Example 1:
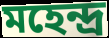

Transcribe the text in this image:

মহেন্দ্ৰ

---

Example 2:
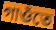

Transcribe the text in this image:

গাওঁতে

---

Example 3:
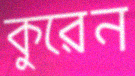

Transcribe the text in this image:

কুৱেন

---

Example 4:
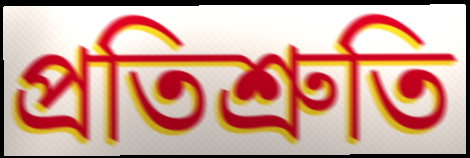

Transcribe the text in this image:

প্ৰতিশ্ৰুতি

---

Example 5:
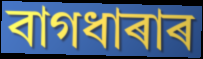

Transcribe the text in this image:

বাগধাৰাৰ